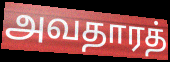
அவதாரத்